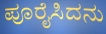
ಪೂರೈಸಿದನು